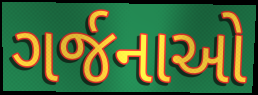
ગર્જનાઓ